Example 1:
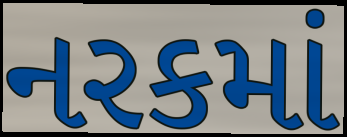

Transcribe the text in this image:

નરકમાં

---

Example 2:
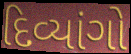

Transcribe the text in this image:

દિવ્યાંગો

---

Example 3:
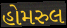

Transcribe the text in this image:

હોમરુલ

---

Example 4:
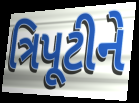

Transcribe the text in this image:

ત્રિપૂટીને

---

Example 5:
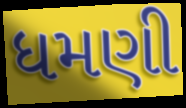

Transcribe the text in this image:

ધમણી